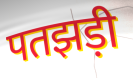
पतझड़ी